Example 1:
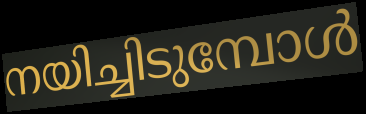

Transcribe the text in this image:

നയിച്ചിടുമ്പോൾ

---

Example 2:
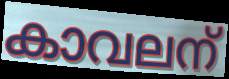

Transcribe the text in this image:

കാവലന്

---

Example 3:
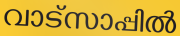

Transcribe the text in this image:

വാട്സാപ്പിൽ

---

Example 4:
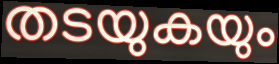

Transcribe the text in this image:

തടയുകയും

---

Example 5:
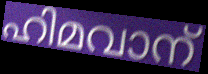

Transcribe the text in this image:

ഹിമവാന്